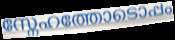
സ്നേഹത്തോടൊപ്പം